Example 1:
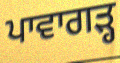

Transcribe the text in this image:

ਪਾਵਾਗੜ੍ਹ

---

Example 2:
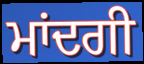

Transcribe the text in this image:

ਮਾਂਦਗੀ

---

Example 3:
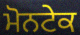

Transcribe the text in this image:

ਮੋਨਟੇਕ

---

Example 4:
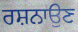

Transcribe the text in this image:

ਰਸ਼ਨਾਉਣ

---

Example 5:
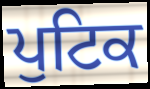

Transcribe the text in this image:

ਪੁਟਿਕ